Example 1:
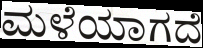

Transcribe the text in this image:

ಮಳೆಯಾಗದೆ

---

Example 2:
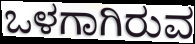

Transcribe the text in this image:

ಒಳಗಾಗಿರುವ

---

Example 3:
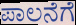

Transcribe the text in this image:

ಪಾಲನೆಗೆ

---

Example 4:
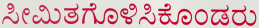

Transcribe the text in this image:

ಸೀಮಿತಗೊಳಿಸಿಕೊಂಡರು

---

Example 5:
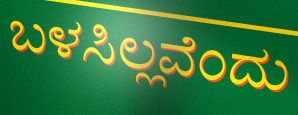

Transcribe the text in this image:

ಬಳಸಿಲ್ಲವೆಂದು